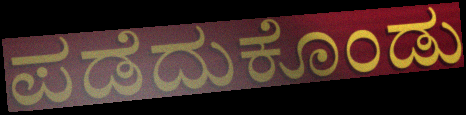
ಪಡೆದುಕೊಂಡು